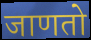
जाणतो